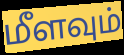
மீளவும்